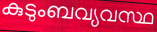
കുടുംബവ്യവസ്ഥ